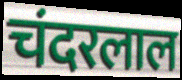
चंदरलाल